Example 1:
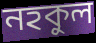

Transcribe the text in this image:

নহকুল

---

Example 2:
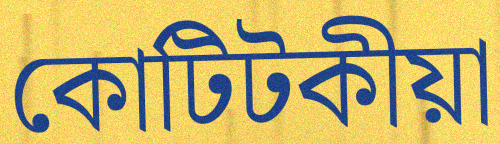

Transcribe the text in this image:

কোটিটকীয়া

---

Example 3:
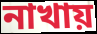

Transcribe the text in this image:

নাখায়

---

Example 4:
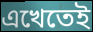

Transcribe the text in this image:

এখেতেই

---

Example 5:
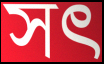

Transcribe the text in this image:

সৎ